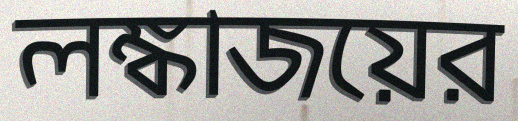
লঙ্কাজয়ের